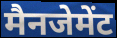
मैनजेमेंट